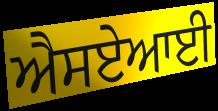
ਐਸਏਆਈ